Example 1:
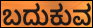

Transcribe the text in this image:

ಬದುಕುವ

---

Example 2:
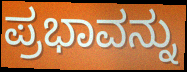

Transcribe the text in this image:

ಪ್ರಭಾವನ್ನು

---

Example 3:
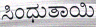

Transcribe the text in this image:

ಸಿಂಧುತಾಯಿ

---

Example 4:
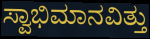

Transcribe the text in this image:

ಸ್ವಾಭಿಮಾನವಿತ್ತು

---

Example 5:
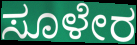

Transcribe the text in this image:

ಸೂಳೇರ